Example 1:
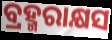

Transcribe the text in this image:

ବ୍ରହ୍ମରାକ୍ଷସ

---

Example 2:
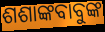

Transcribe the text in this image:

ଶଶାଙ୍କବାବୁଙ୍କ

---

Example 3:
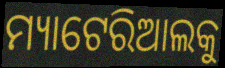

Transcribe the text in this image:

ମ୍ୟାଟେରିଆଲକୁ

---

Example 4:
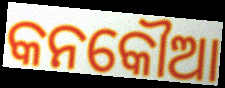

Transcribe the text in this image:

କନକୌଆ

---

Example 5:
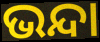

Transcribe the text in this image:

ଭନ୍ଦା